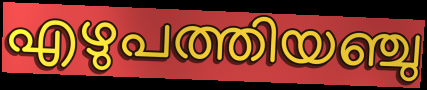
എഴുപത്തിയഞ്ചു